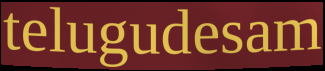
telugudesam